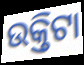
ଉକ୍ତିଟା